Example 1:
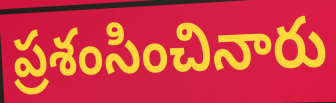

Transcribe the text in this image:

ప్రశంసించినారు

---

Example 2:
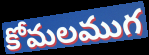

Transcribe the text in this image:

కోమలముగ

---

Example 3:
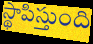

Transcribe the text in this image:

స్థాపిస్తుంది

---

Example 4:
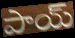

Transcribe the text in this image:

పాయ్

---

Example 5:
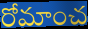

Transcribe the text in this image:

రోమాంచ